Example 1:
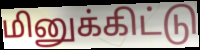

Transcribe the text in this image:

மினுக்கிட்டு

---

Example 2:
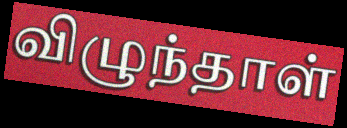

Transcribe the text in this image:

விழுந்தாள்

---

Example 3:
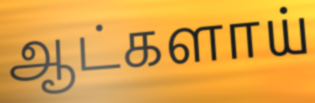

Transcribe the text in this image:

ஆட்களாய்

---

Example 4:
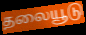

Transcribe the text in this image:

தலையூடு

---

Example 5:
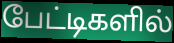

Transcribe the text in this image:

பேட்டிகளில்